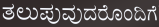
ತಲುಪುವುದರೊಂದಿಗೆ